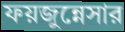
ফয়জুন্নেসার